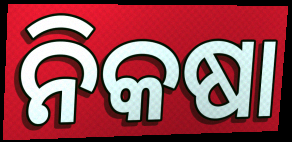
ନିକଷା